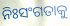
ନିଃସଂଗତାକୁ